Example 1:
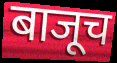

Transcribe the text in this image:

बाजूच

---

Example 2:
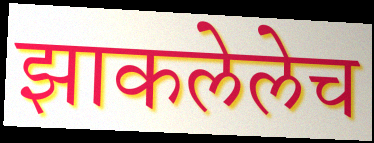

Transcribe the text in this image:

झाकलेलेच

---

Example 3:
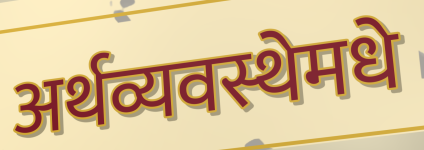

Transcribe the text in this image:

अर्थव्यवस्थेमधे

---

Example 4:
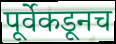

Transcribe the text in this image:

पूर्वेकडूनच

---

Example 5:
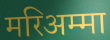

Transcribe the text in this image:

मरिअम्मा